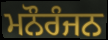
ਮਨੌਰੰਜਨ